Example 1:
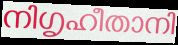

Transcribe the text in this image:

നിഗൃഹീതാനി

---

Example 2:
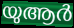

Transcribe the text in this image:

യുആർ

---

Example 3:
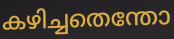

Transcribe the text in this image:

കഴിച്ചതെന്തോ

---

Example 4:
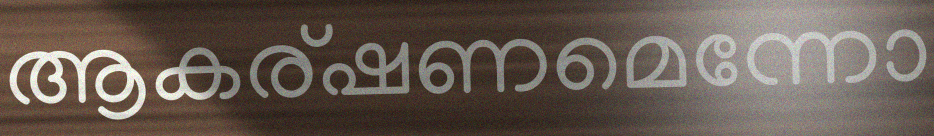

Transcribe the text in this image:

ആകര്ഷണമെന്നോ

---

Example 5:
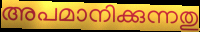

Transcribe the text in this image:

അപമാനിക്കുന്നതു